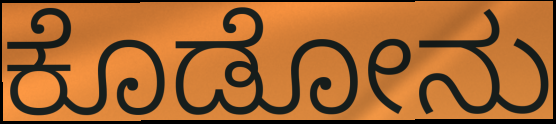
ಕೊಡೋನು